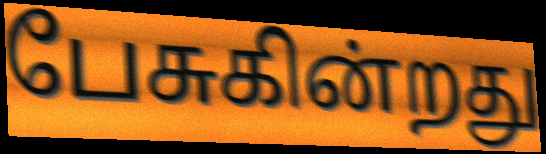
பேசுகின்றது